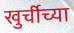
खुर्चीच्या